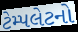
ટેમ્પલેટનો